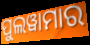
ପୁଲୱାମାର